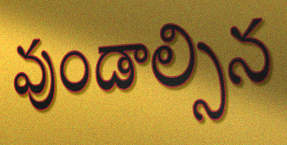
వుండాల్సిన